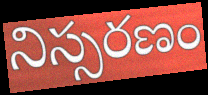
నిస్సరణం